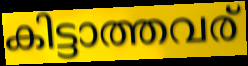
കിട്ടാത്തവര്